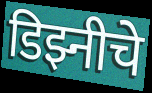
डिझ्नीचे